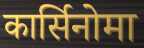
कार्सिनोमा